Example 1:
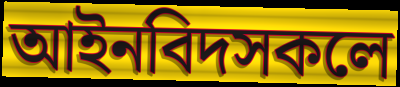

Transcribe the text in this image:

আইনবিদসকলে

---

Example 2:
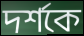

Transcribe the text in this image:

দৰ্শকে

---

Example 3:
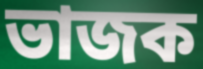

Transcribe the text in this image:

ভাজক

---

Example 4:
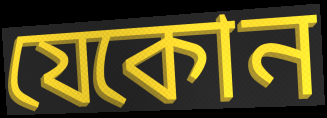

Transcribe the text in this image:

যেকোন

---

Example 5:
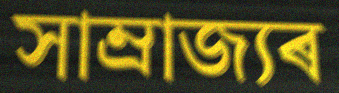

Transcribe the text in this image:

সাম্ৰাজ্যৰ